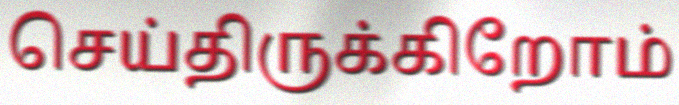
செய்திருக்கிறோம்